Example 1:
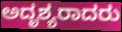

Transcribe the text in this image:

ಅದೃಶ್ಯರಾದರು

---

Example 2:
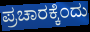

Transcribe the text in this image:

ಪ್ರಚಾರಕ್ಕೆಂದು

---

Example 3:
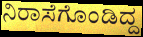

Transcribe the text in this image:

ನಿರಾಸೆಗೊಂಡಿದ್ದ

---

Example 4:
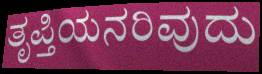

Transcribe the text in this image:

ತೃಪ್ತಿಯನರಿವುದು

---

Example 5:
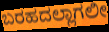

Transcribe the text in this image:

ಬರಹದಲ್ಲಾಗಲೀ